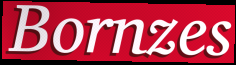
Bornzes